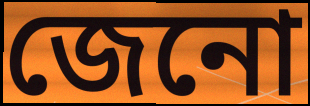
জেনো